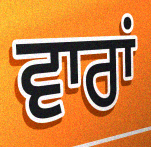
ਵਾਰਾਂ